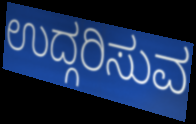
ಉದ್ಗರಿಸುವ